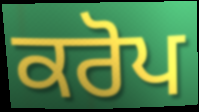
ਕਰੋਪ